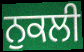
ਨੁਕਲੀ